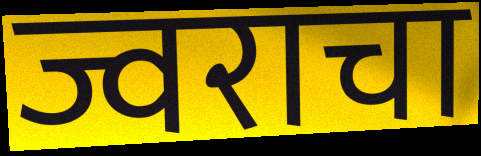
ज्वराचा